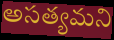
అసత్యమని